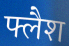
फ्लैश